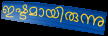
ഇഷ്ടമായിരുന്നു